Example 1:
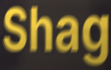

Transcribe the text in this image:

Shag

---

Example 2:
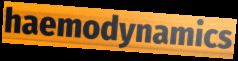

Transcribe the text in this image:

haemodynamics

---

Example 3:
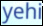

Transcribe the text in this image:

yehi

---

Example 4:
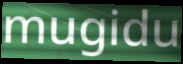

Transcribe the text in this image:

mugidu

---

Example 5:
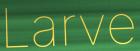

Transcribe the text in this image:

Larve